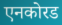
एनकोरड